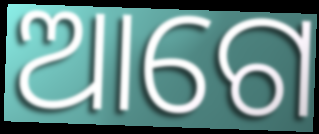
ଆଗେ